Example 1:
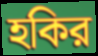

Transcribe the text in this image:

হকির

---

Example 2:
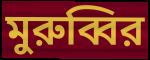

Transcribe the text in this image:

মুরুব্বির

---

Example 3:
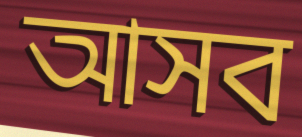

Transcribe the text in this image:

আসব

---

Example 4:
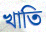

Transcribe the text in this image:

খাতি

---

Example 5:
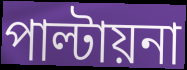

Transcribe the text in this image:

পাল্টায়না